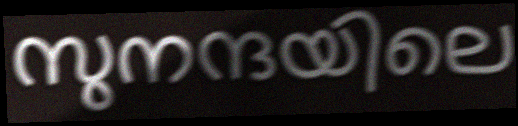
സുനന്ദയിലെ